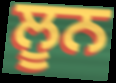
ਲੂਨ